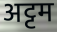
अट्टम